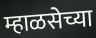
म्हाळसेच्या